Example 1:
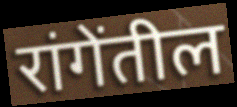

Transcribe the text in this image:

रांगेंतील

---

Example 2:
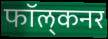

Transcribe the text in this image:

फॉल्कनर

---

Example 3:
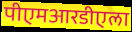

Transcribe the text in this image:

पीएमआरडीएला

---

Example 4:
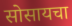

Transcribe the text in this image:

सोसायचा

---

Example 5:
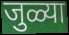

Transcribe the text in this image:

जुळ्या